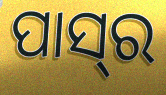
ପାସ୍‍ର